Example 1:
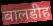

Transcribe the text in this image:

बालडीह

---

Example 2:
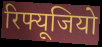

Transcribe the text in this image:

रिफ्यूजियो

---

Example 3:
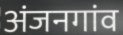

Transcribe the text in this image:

अंजनगांव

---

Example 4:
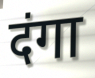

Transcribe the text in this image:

दंगा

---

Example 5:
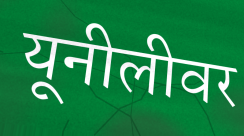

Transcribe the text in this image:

यूनीलीवर